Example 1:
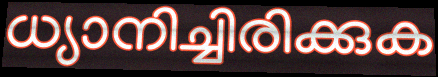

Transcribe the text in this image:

ധ്യാനിച്ചിരിക്കുക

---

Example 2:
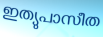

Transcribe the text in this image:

ഇത്യുപാസീത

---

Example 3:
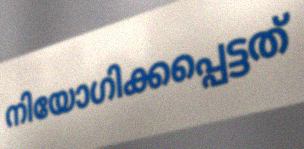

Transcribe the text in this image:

നിയോഗിക്കപ്പെട്ടത്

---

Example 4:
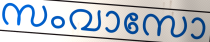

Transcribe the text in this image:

സംവാസോ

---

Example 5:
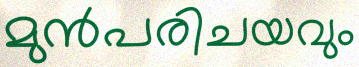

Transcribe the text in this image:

മുൻപരിചയവും